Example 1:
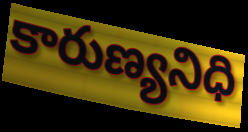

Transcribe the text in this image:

కారుణ్యనిధి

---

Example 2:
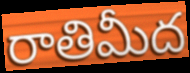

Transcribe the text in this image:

రాతిమీద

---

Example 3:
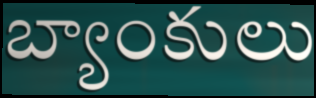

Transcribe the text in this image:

బ్యాంకులు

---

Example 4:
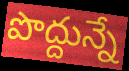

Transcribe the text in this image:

పొద్దున్నే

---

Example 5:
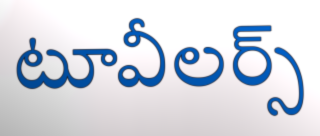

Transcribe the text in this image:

టూవీలర్స్